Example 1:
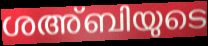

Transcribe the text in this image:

ശഅ്ബിയുടെ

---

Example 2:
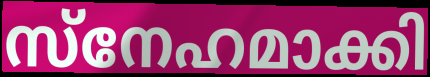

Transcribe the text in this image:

സ്നേഹമാക്കി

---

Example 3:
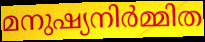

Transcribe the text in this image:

മനുഷ്യനിർമ്മിത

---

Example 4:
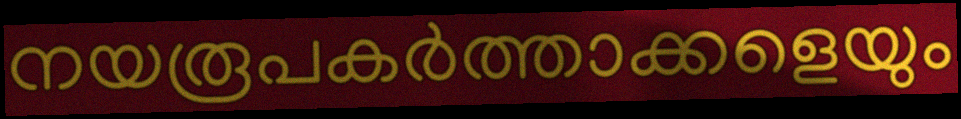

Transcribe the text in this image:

നയരൂപകർത്താക്കളെയും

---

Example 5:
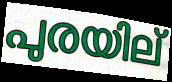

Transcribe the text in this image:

പുരയില്